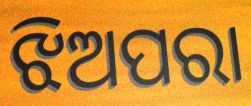
ଝିଅପରା